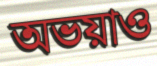
অভয়াও